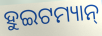
ହୁଇଟମ୍ୟାନ୍